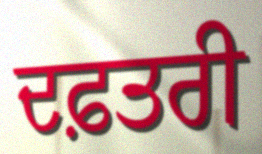
ਦਫ਼ਤਰੀ